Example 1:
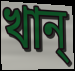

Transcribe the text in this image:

খান্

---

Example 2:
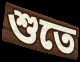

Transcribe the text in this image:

শুতে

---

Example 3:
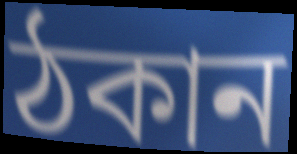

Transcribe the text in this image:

ঠকান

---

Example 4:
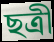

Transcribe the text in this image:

ছত্রী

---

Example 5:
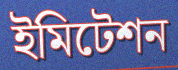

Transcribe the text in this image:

ইমিটেশন